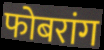
फोबरांग